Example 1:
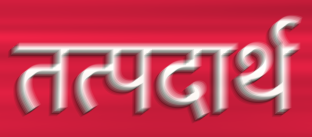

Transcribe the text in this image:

तत्पदार्थ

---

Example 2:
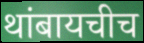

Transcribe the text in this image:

थांबायचीच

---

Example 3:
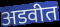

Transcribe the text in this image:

अडवीत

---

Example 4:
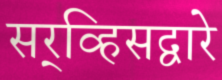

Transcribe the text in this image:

सर्व्हिसद्वारे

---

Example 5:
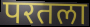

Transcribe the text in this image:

परतला